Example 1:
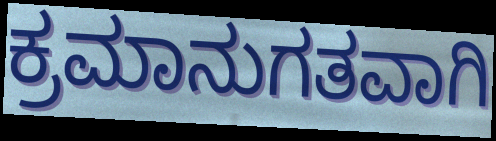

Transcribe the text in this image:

ಕ್ರಮಾನುಗತವಾಗಿ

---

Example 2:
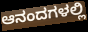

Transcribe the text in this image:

ಆನಂದಗಳಲ್ಲಿ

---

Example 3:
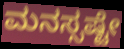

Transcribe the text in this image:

ಮನಸ್ಸಷ್ಟೇ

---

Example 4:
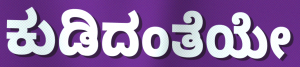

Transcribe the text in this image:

ಕುಡಿದಂತೆಯೇ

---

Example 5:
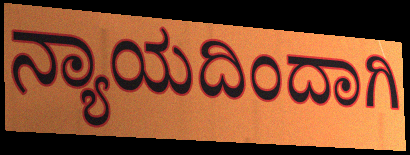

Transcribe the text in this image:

ನ್ಯಾಯದಿಂದಾಗಿ